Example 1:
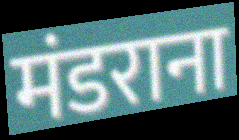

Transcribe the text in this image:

मंडराना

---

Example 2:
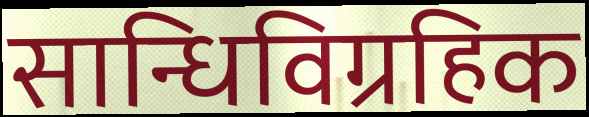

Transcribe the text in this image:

सान्धिविग्रहिक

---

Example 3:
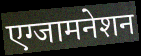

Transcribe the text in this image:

एग्जामनेशन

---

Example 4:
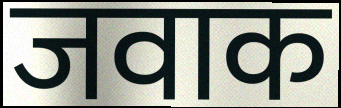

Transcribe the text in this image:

जवाक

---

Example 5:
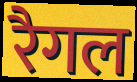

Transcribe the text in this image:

रैगल